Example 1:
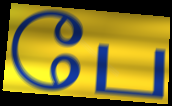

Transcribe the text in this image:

பே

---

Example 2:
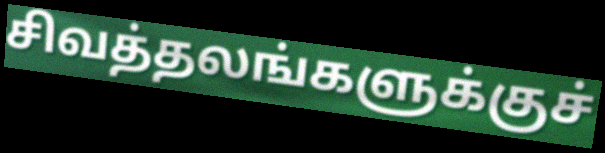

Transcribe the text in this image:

சிவத்தலங்களுக்குச்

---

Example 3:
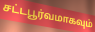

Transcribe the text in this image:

சட்டபூர்வமாகவும்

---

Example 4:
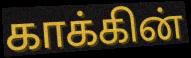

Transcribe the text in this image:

காக்கின்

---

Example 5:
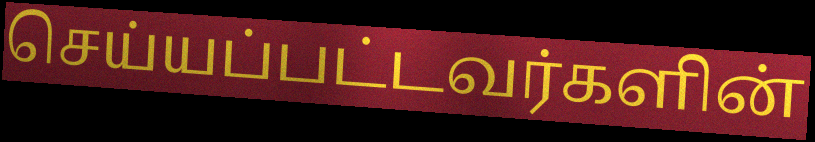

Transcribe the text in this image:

செய்யப்பட்டவர்களின்